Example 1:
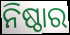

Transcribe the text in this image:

ନିଷ୍ଠାର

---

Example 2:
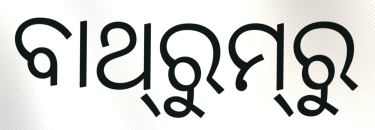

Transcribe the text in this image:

ବାଥ୍‌ରୁମ୍‌ରୁ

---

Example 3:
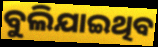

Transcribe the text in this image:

ବୁଲିଯାଇଥିବ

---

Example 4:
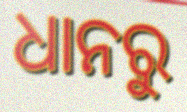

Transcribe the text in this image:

ଧାନରୁ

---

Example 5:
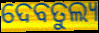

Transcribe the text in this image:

ଦେବତୁଲ୍ୟ